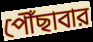
পৌঁছাবার